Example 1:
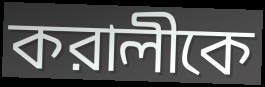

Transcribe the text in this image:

করালীকে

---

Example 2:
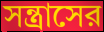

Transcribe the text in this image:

সন্ত্রাসের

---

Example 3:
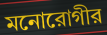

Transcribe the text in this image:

মনোরোগীর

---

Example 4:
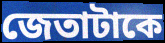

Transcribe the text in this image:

জেতাটাকে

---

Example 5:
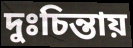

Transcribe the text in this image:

দুঃচিন্তায়